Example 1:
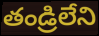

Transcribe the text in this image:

తండ్రిలేని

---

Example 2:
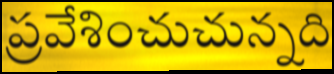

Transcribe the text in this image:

ప్రవేశించుచున్నది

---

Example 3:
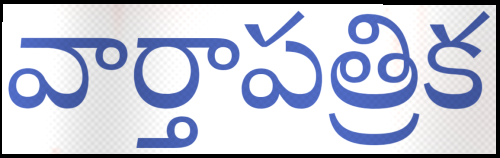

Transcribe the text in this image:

వార్తాపత్రిక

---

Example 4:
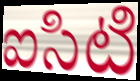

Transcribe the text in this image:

ఐసిటి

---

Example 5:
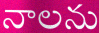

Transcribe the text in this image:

నాలను